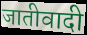
जातीवादी